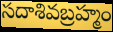
సదాశివబ్రహ్మం